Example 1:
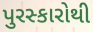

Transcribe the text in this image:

પુરસ્કારોથી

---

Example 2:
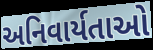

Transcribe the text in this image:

અનિવાર્યતાઓ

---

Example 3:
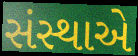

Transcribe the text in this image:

સંસ્થાએ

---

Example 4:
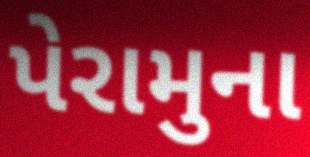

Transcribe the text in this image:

પેરામુના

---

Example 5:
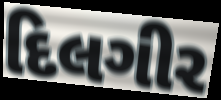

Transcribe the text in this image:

દિલગીર